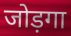
जोड़गा